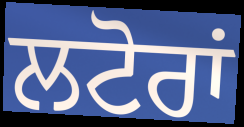
ਲਟੋਰਾਂ